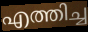
എത്തിച്ച